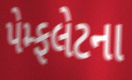
પેમ્ફલેટના